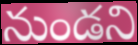
నుండని